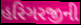
હરિગરજીની